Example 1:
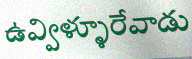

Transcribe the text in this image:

ఉవ్విళ్ళూరేవాడు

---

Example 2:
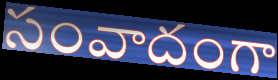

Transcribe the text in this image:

సంవాదంగా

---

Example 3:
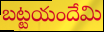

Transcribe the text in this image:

బట్టయందేమి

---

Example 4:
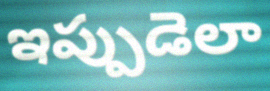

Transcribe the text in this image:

ఇప్పుడెలా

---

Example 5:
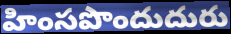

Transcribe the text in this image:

హింసపొందుదురు